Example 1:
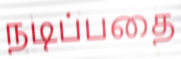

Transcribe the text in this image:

நடிப்பதை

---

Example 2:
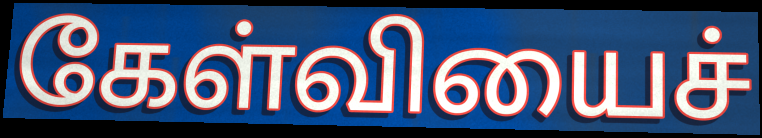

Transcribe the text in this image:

கேள்வியைச்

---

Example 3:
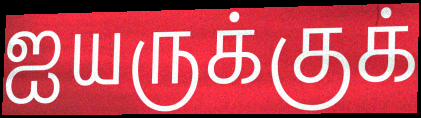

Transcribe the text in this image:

ஐயருக்குக்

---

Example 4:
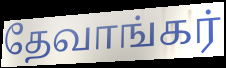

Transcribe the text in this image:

தேவாங்கர்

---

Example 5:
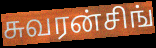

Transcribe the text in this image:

சுவரன்சிங்